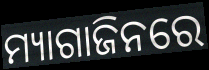
ମ୍ୟାଗାଜିନରେ